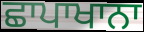
ਛਾਪਾਖਾਨਾ